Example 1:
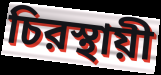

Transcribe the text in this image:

চিরস্থায়ী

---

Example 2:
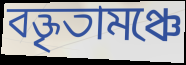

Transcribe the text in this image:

বক্তৃতামঞ্চে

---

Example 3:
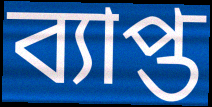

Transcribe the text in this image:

ব্যাপ্ত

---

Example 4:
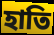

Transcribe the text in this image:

হাতি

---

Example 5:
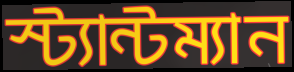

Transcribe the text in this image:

স্ট্যান্টম্যান